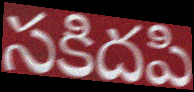
సకిదపి